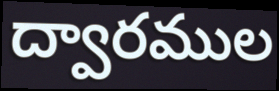
ద్వారముల